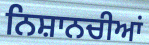
ਨਿਸ਼ਾਨਚੀਆਂ